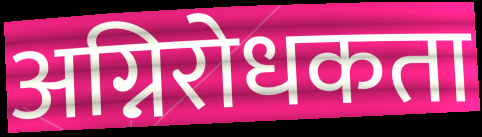
अग्निरोधकता